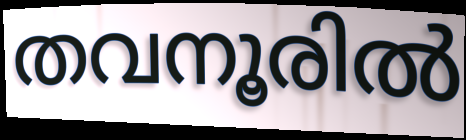
തവനൂരിൽ